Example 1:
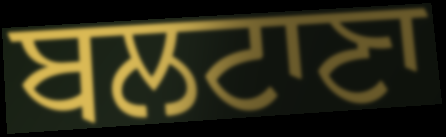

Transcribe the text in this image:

ਬਲਟਾਣਾ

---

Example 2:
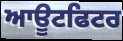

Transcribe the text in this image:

ਆਊਟਫਿਟਰ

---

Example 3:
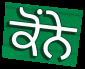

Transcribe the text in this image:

ਕੋਂਨੇ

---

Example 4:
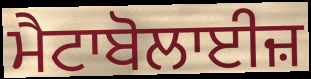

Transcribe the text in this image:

ਮੈਟਾਬੋਲਾਈਜ਼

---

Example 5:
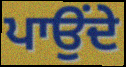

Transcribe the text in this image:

ਪਾਉਂਦੇ